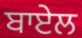
ਬਾਏਲ